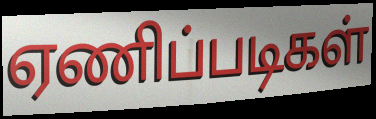
ஏணிப்படிகள்